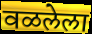
वळलेला